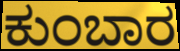
ಕುಂಬಾರ